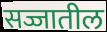
सज्जातील